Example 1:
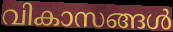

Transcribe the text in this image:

വികാസങ്ങൾ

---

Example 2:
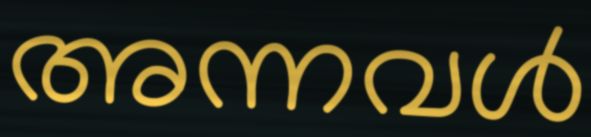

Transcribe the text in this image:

അന്നവൾ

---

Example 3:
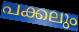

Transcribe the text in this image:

പക്കലും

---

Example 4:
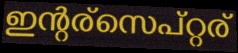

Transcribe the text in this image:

ഇന്റര്സെപ്റ്റര്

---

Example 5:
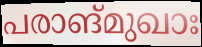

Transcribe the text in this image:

പരാങ്മുഖാഃ